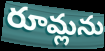
రూమ్లను